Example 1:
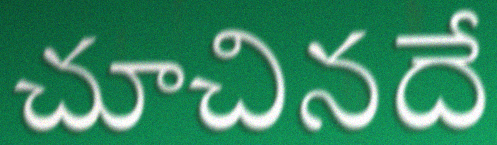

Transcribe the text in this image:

చూచినదే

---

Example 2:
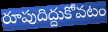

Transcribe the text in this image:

రూపుదిద్దుకోవటం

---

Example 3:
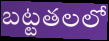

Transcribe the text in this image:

బట్టతలలో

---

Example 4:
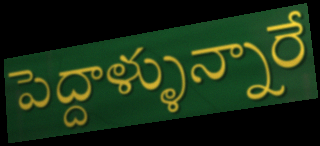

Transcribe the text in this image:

పెద్దాళ్ళున్నారే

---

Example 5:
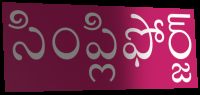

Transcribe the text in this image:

సింప్లిఫోర్జ్